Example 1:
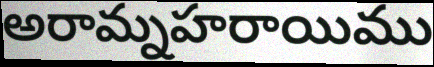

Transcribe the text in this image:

అరామ్నహరాయిము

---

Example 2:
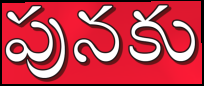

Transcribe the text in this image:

పునకు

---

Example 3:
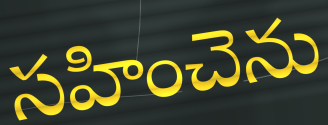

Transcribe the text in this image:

సహించెను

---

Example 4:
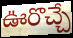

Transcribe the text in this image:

ఊరొచ్చే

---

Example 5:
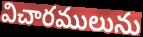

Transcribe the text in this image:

విచారములును